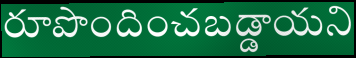
రూపొందించబడ్డాయని